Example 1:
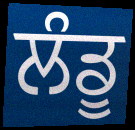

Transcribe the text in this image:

ਲੰਡੂ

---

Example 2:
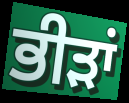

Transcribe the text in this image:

ਭੀੜਾਂ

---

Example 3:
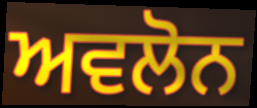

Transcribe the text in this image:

ਅਵਲੋਨ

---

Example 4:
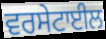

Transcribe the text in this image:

ਵਰਸੇਟਾਈਲ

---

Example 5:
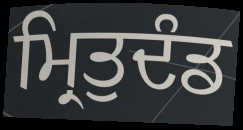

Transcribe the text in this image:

ਮ੍ਰਿਤੁਦੰਡ